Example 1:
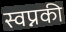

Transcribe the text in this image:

स्वप्नकी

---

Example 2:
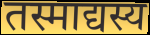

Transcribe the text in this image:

तस्माद्यस्य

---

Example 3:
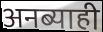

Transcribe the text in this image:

अनब्याही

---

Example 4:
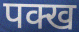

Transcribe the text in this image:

पक्ख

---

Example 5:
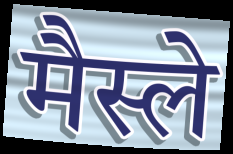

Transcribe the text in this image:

मैस्ले